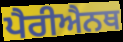
ਪੈਰੀਐਨਥ